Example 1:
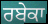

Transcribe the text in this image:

ਰਬੇਕਾ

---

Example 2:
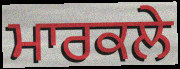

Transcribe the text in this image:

ਮਾਰਕਲੇ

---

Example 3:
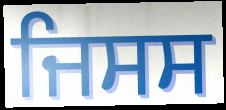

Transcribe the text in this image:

ਜਿਸਸ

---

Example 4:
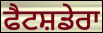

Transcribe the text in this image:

ਫੈਟਸ਼ਡੇਰਾ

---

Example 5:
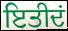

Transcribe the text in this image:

ਇਤੀਦਂ